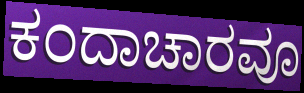
ಕಂದಾಚಾರವೂ